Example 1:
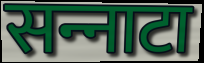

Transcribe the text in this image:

सन्‍नाटा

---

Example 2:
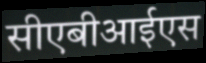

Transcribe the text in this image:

सीएबीआईएस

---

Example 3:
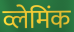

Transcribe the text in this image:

व्लेमिंक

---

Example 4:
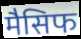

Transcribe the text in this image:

मैसिफ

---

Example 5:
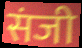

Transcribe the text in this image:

संजी